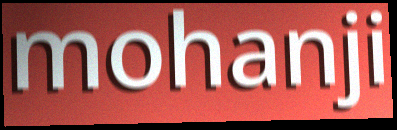
mohanji